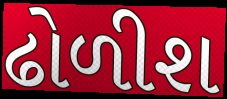
ઢોળીશ